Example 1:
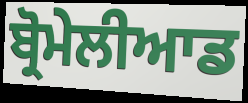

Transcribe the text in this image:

ਬ੍ਰੋਮੇਲੀਆਡ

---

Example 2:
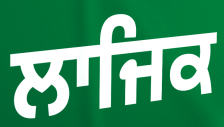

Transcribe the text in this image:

ਲਾਜਿਕ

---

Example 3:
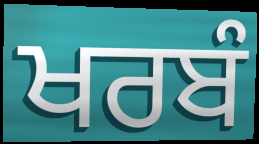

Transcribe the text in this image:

ਖਰਬੰ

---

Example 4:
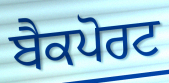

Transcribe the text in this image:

ਬੈਕਪੋਰਟ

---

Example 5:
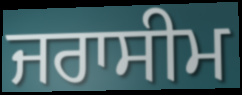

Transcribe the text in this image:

ਜਰਾਸੀਮ